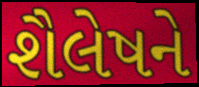
શૈલેષને